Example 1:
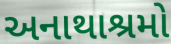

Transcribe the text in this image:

અનાથાશ્રમો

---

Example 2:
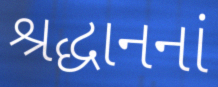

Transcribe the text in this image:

શ્રદ્ધાનનાં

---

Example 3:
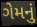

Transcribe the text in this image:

ગેમનું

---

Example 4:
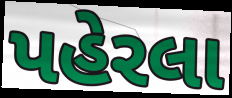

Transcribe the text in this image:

પહેરલા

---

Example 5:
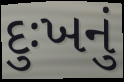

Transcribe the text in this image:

દુઃખનું